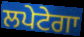
ਲਪੇਟੇਗਾ